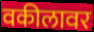
वकीलावर